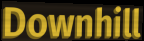
Downhill